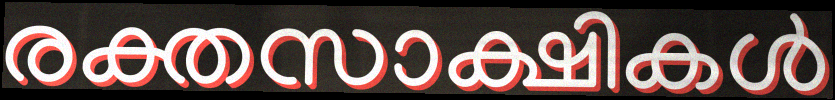
രക്തസാക്ഷികൾ